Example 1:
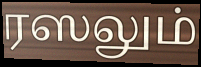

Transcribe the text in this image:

ரஸலும்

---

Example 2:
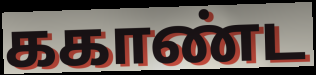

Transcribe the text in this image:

ககாண்ட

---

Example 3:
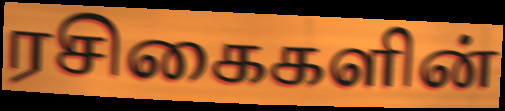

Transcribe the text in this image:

ரசிகைகளின்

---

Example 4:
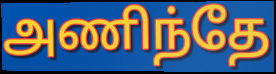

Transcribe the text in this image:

அணிந்தே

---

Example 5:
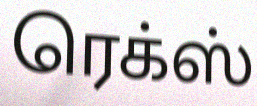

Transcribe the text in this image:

ரெக்ஸ்